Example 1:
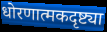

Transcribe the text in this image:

धोरणात्मकदृष्ट्या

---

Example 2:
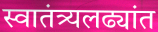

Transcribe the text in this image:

स्वातंत्र्यलढ्यांत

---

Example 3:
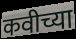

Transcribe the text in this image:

कवीच्या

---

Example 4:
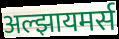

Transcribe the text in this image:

अल्झायमर्स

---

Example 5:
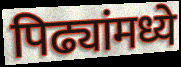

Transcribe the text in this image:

पिढ्यांमध्ये